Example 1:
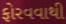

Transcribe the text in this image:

ફોરવવાથી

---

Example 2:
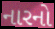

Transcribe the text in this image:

નારનો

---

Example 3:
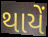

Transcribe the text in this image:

થાયેં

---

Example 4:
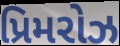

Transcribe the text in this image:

પ્રિમરોઝ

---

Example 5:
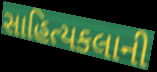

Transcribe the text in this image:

સાહિત્યકલાની